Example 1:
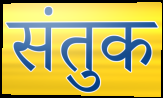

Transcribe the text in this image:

संतुक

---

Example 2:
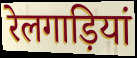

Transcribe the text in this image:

रेलगाड़ियां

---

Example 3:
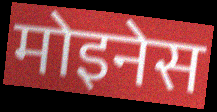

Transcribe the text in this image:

मोइनेस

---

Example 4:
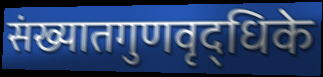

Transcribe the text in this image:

संख्यातगुणवृद्धिके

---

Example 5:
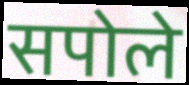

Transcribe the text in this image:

सपोले